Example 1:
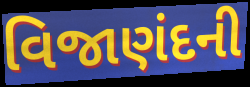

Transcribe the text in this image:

વિજાણંદની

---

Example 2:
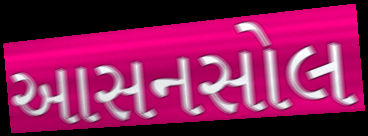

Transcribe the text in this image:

આસનસોલ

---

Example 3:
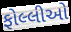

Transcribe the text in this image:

ફોલ્લીઓ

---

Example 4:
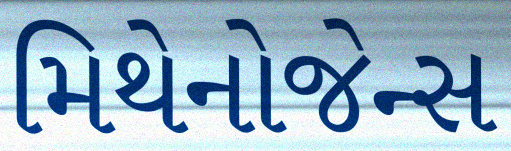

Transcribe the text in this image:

મિથેનોજેન્સ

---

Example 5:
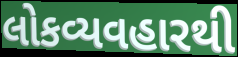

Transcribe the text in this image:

લોકવ્યવહારથી